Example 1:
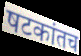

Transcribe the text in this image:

षटकांतच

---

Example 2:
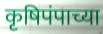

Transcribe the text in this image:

कृषिपंपाच्या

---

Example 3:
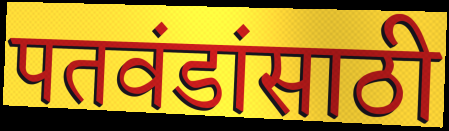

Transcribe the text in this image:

पतवंडांसाठी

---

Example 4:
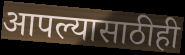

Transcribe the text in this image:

आपल्यासाठीही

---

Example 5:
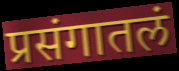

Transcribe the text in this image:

प्रसंगातलं